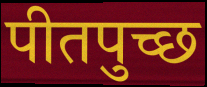
पीतपुच्छ